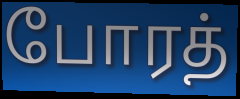
போரத்